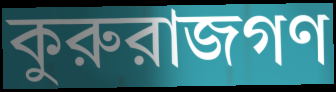
কুরুরাজগণ